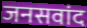
जनसवांद